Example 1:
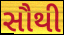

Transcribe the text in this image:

સૌથી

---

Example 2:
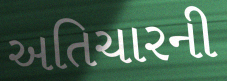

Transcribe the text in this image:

અતિચારની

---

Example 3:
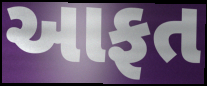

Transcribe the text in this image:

આફત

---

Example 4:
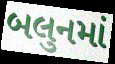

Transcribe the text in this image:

બલુનમાં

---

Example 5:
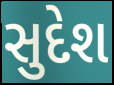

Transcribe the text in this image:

સુદેશ